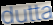
dutta